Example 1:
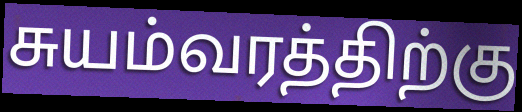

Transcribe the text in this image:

சுயம்வரத்திற்கு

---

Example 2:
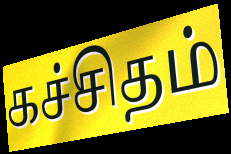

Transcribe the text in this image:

கச்சிதம்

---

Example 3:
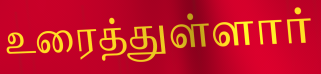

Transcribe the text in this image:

உரைத்துள்ளார்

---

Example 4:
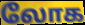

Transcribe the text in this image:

லோக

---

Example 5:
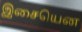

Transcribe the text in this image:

இசையென